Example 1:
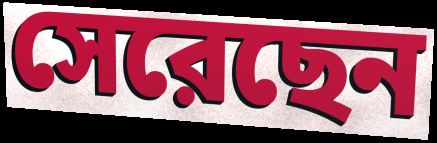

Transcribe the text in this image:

সেরেছেন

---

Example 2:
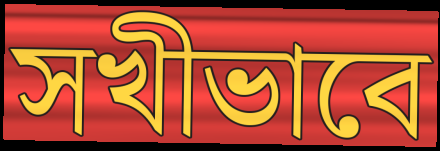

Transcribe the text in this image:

সখীভাবে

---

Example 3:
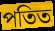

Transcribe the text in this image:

পতিত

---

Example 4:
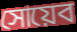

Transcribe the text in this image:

সোয়েব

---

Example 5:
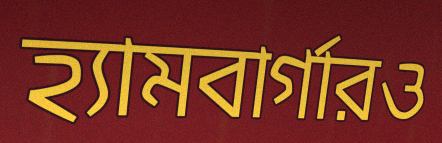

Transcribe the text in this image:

হ্যামবার্গারও